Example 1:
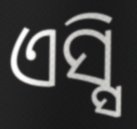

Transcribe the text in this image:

ଏସ୍ସି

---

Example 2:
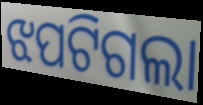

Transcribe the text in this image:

ଝପଟିଗଲା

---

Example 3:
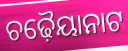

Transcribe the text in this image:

ଚଢ଼ୈୟାନାଟ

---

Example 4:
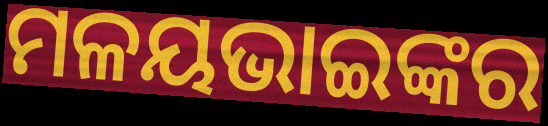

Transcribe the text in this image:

ମଳୟଭାଇଙ୍କର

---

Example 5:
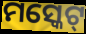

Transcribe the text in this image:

ମସ୍କେଟ୍